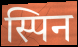
स्पिन